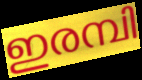
ഇരമ്പി